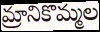
మ్రానికొమ్మల